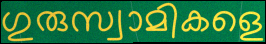
ഗുരുസ്വാമികളെ